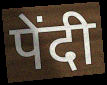
पेंदी